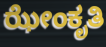
ಝೇಂಕೃತಿ